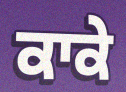
ਕਾਕੇ